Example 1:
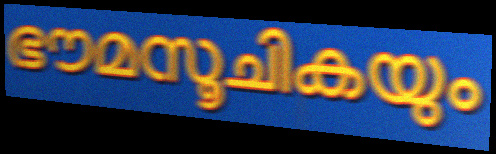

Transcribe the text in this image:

ഭൗമസൂചികയും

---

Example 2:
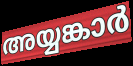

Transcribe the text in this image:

അയ്യങ്കാർ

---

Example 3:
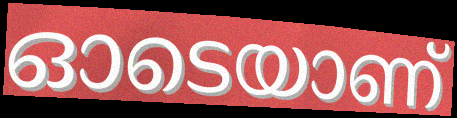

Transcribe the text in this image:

ഓടെയാണ്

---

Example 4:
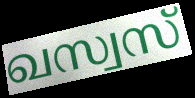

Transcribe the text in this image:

ഖസ്വസ്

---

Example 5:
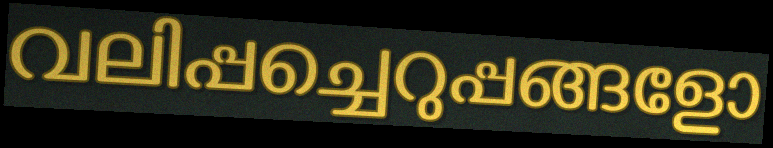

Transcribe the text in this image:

വലിപ്പച്ചെറുപ്പങ്ങളോ